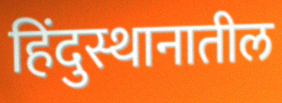
हिंदुस्थानातील